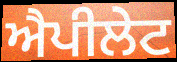
ਐਪੀਲੇਟ